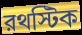
রথস্টিক